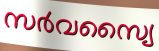
സർവസ്യൈ